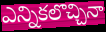
ఎన్నికలొచ్చినా